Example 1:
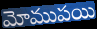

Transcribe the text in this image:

మోముపయి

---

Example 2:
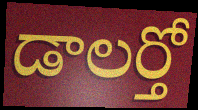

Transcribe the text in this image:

డాలర్తో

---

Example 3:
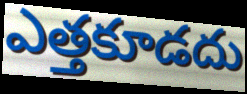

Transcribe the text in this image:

ఎత్తకూడదు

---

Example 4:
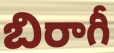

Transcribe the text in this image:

బిరాగీ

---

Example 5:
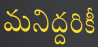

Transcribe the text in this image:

మనిద్దరికీ